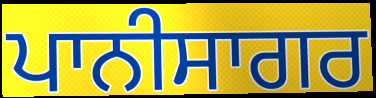
ਪਾਨੀਸਾਗਰ